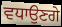
ਵਧਾਉਣਗੇ